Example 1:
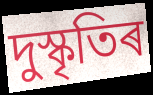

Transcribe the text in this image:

দুস্কৃতিৰ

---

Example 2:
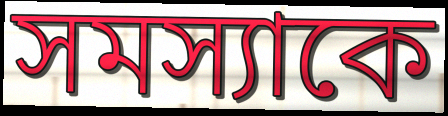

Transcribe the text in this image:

সমস্যাকে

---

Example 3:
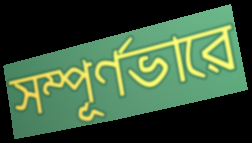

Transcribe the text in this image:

সম্পূৰ্ণভাৱে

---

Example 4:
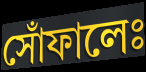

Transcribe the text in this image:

সোঁফালেঃ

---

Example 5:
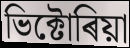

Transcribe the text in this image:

ভিক্টোৰিয়া